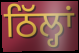
ਠਿੱਲ੍ਹਾਂ